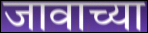
जावाच्या